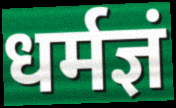
धर्मज्ञं